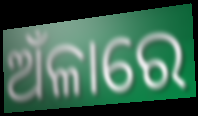
ଅଁଳାରେ